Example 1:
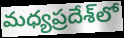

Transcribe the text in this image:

మధ్యప్రదేశ్‌లో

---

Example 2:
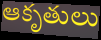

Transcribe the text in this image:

ఆకృతులు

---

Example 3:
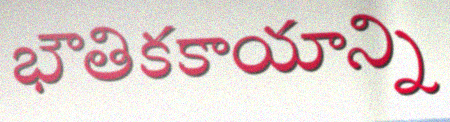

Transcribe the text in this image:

భౌతికకాయాన్ని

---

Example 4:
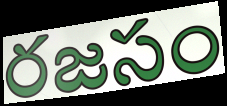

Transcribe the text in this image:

రజసం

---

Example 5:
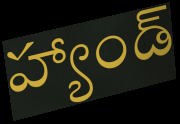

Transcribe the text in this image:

హ్యాండ్